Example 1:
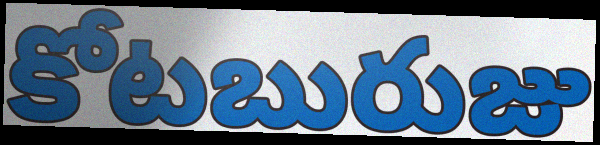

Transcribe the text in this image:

కోటబురుజు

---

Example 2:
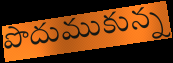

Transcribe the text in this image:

పొదుముకున్న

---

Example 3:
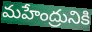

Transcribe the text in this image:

మహేంద్రునికి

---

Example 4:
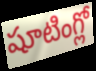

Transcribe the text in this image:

షూటింగ్లో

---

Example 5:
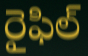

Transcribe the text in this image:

రైఫిల్